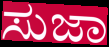
ಸುಜಾ